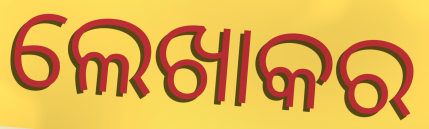
ଲେଖାକର